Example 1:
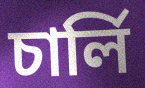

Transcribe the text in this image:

চার্লি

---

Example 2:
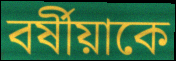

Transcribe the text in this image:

বর্ষীয়াকে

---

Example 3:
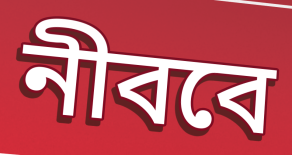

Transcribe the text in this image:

নীববে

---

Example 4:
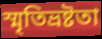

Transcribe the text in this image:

স্মৃতিভ্রষ্টতা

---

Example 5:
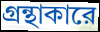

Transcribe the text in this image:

গ্রন্থাকারে